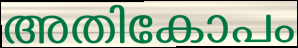
അതികോപം